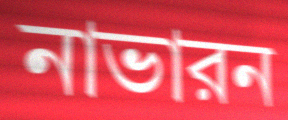
নাভারন